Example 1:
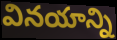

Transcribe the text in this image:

వినయాన్ని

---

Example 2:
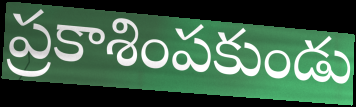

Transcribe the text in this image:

ప్రకాశింపకుండు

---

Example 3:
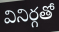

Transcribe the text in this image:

వినిర్గతో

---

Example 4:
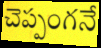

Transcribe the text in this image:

చెప్పంగనే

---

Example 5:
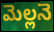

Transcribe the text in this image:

మెల్లనె